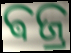
ଵଜ୍ର